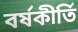
বর্ষকীর্তি